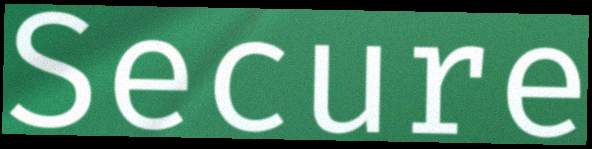
Secure